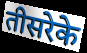
तीसरेके